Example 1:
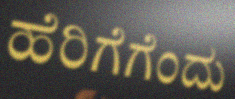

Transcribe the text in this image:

ಹೆರಿಗೆಗೆಂದು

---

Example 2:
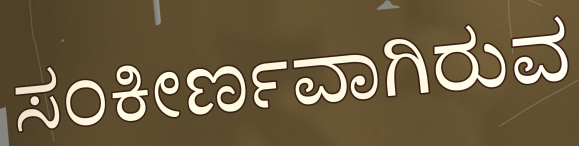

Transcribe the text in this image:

ಸಂಕೀರ್ಣವಾಗಿರುವ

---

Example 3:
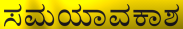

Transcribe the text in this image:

ಸಮಯಾವಕಾಶ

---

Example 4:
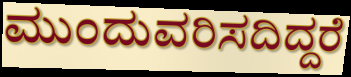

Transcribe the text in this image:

ಮುಂದುವರಿಸದಿದ್ದರೆ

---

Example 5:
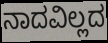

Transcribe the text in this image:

ನಾದವಿಲ್ಲದ